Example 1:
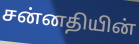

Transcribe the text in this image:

சன்னதியின்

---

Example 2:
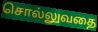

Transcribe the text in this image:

சொல்லுவதை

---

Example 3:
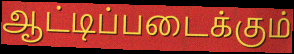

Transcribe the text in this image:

ஆட்டிப்படைக்கும்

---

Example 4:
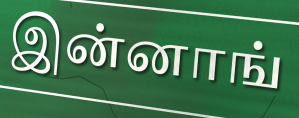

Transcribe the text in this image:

இன்னாங்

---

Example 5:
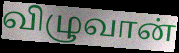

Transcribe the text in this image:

விழுவான்